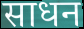
साधन